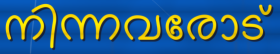
നിന്നവരോട്